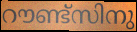
റൗണ്ട്സിനു